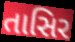
તાસિર